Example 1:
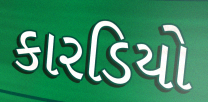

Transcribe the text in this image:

કારડિયો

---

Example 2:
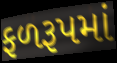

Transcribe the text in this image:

ફળરૂપમાં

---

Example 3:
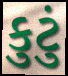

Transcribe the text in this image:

કુટું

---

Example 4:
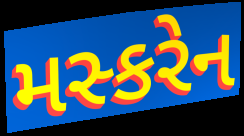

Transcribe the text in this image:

મસ્કરેન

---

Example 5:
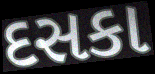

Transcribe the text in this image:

દસકા